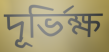
দূর্ভিক্ষ